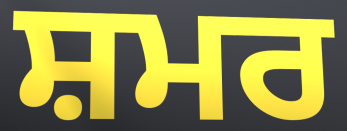
ਸ਼ਮਰ